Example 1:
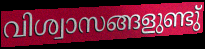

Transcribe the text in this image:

വിശ്വാസങ്ങളുണ്ടു്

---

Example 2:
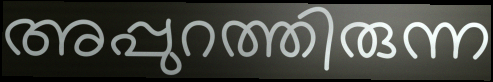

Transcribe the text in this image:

അപ്പുറത്തിരുന്ന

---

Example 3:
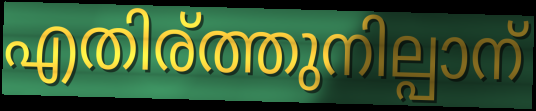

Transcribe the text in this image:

എതിര്ത്തുനില്പാന്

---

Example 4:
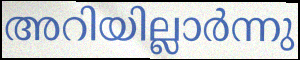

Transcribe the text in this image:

അറിയില്ലാർന്നു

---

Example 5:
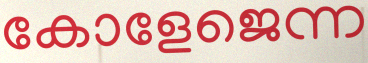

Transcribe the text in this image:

കോളേജെന്ന